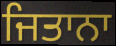
ਜਿਤਾਨਾ